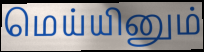
மெய்யினும்